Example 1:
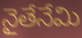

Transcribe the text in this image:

నైతేనేమి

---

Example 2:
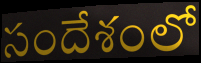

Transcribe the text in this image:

సందేశంలో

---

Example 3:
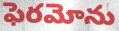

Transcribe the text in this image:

ఫెరమోను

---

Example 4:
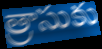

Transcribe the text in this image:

త్రాసుకు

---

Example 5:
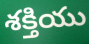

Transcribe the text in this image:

శక్తియు